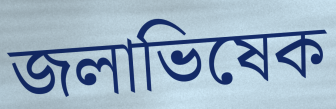
জলাভিষেক